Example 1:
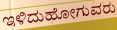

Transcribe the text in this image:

ಇಳಿದುಹೋಗುವರು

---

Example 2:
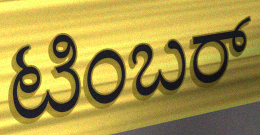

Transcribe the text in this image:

ಟಿಂಬರ್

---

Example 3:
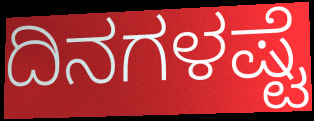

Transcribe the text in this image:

ದಿನಗಳಷ್ಟೆ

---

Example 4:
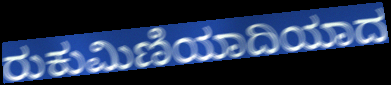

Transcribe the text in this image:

ರುಕುಮಿಣಿಯಾದಿಯಾದ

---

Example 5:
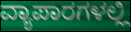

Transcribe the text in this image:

ವ್ಯಾಪಾರಗಳಲ್ಲಿ